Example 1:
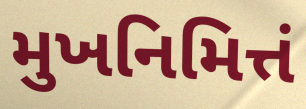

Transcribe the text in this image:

મુખનિમિત્તં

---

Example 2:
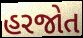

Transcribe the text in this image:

હરજોત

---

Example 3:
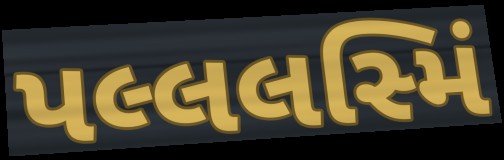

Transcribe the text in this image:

પલ્લલસ્મિં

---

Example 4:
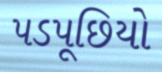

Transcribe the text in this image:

પડપૂછિયો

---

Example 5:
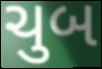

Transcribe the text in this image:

ચુબ